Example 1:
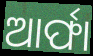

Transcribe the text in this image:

ଆର୍ଫା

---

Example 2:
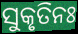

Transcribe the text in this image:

ସୁକୃତିନଃ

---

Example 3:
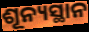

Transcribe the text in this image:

ଶୂନ୍ୟସ୍ଥାନ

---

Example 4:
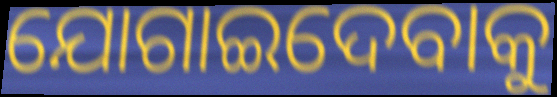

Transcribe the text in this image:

ଯୋଗାଇଦେବାକୁ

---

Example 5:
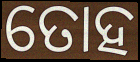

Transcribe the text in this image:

ତୋହ